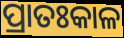
ପ୍ରାତଃକାଳ